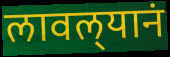
लावल्यानं